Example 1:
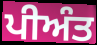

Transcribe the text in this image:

ਪੀਅੰਤ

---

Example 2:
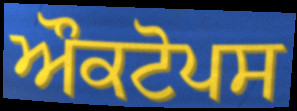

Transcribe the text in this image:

ਔਕਟੋਪਸ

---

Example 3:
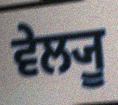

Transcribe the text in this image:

ਵੇਲ੍ਯੂ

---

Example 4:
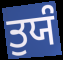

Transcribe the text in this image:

ਤੁਯੰ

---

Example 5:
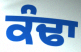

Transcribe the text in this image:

ਕੰਢਾ